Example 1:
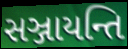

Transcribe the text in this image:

સઞ્જાયન્તિ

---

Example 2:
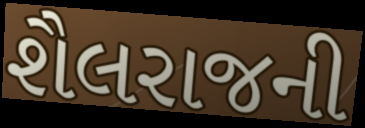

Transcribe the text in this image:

શૈલરાજની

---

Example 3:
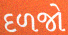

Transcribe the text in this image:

દળજો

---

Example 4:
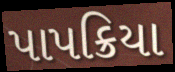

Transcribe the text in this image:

પાપક્રિયા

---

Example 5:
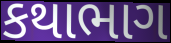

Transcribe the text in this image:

કથાભાગ